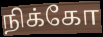
நிக்கோ